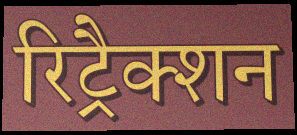
रिट्रैक्शन